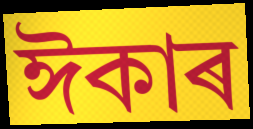
ঈকাৰ